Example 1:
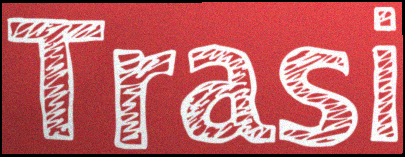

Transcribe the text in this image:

Trasi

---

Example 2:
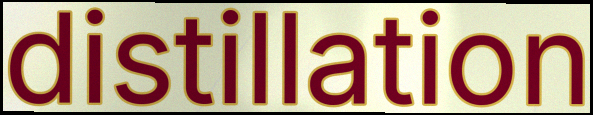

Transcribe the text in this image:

distillation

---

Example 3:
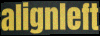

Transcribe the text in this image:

alignleft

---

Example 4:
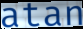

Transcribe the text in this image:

atan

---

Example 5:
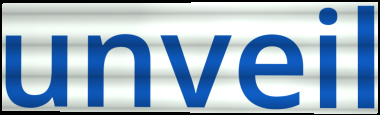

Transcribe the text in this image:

unveil